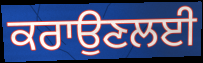
ਕਰਾਉਣਲਈ